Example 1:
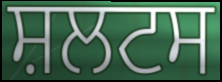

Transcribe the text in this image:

ਸ਼ਲਟਸ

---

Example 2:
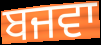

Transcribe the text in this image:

ਬਜਵਾ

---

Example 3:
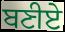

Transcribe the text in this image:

ਬਣੀਏ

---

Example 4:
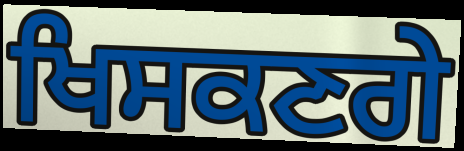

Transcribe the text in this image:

ਖਿਸਕਣਗੇ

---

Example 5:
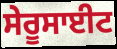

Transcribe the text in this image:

ਸੇਰੂਸਾਈਟ